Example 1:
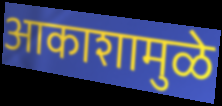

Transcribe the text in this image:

आकाशामुळे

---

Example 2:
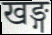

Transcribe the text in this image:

खङ्ग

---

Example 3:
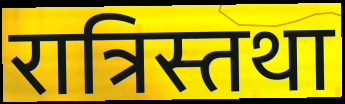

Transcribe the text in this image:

रात्रिस्तथा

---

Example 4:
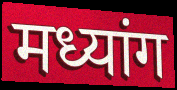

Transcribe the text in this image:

मध्यांग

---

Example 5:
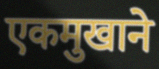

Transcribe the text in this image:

एकमुखाने